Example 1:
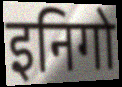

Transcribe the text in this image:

इनिगो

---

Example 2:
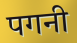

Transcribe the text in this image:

पगनी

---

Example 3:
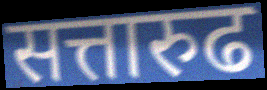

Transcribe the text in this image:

सत्तारुढ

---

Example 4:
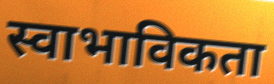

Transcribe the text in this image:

स्वाभाविकता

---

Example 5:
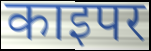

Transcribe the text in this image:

काइपर